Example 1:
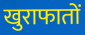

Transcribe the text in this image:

खुराफातों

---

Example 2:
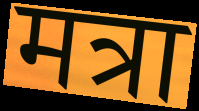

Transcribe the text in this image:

मत्रा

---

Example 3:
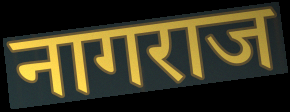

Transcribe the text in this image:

नागराज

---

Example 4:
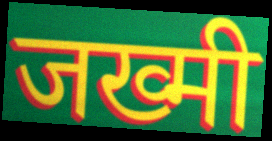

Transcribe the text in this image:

जख्मी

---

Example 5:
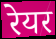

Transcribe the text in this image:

रेयर